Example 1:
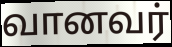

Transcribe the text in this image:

வானவர்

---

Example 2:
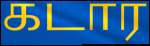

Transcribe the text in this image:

கடார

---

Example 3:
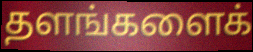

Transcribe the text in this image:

தளங்களைக்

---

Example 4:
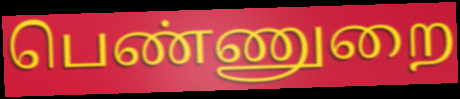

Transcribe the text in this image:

பெண்ணுறை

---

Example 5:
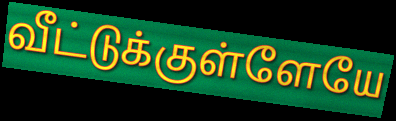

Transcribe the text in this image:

வீட்டுக்குள்ளேயே